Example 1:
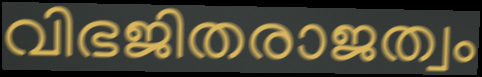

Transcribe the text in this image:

വിഭജിതരാജത്വം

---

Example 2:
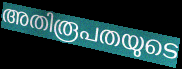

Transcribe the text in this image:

അതിരൂപതയുടെ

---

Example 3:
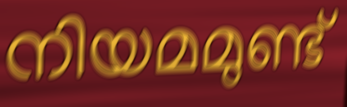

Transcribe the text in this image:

നിയമമുണ്ട്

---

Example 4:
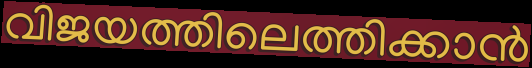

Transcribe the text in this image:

വിജയത്തിലെത്തിക്കാൻ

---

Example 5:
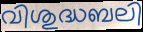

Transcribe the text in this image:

വിശുദ്ധബലി